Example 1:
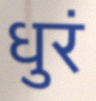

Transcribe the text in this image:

धुरं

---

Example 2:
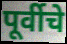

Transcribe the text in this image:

पूर्वीचे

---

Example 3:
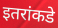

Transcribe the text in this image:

इतरांकडे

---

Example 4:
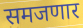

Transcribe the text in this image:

समजणार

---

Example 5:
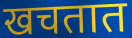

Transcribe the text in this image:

खचतात